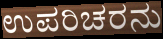
ಉಪರಿಚರನು